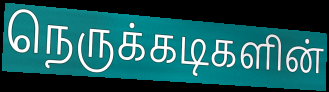
நெருக்கடிகளின்